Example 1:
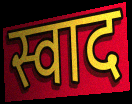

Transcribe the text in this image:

स्‍वाद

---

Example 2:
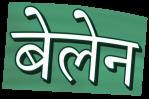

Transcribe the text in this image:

बेलेन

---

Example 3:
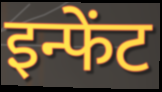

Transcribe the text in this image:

इन्फेंट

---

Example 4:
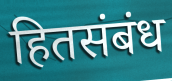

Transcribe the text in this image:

हितसंबंध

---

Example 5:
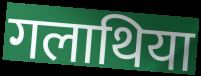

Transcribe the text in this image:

गलाथिया